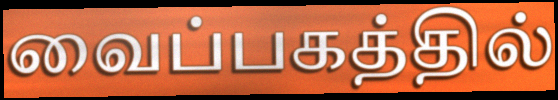
வைப்பகத்தில்